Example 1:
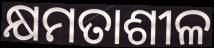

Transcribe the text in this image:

କ୍ଷମତାଶୀଳ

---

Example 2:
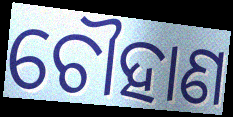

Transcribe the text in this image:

ଚୌହାଣ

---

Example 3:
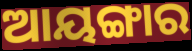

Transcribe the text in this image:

ଆୟଙ୍ଗାର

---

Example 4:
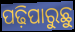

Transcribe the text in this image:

ପଢ଼ିପାରୁଛୁ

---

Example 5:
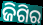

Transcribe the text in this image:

ଜିଗିର